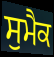
ਸੁਮੈਕ